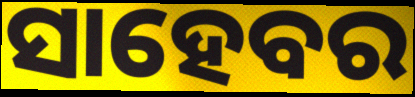
ସାହେବର